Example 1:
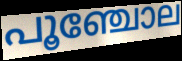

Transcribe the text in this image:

പൂഞ്ചോല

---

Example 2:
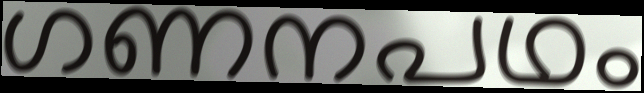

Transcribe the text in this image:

ഗണനപഥം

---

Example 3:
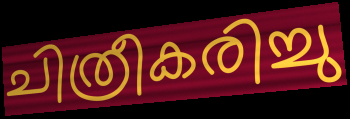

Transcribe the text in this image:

ചിത്രീകരിച്ചു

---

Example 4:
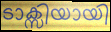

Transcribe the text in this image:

ടാക്സിയായി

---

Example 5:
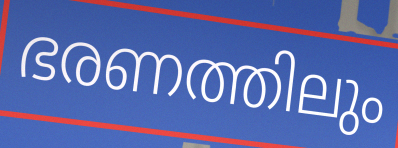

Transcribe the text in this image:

ഭരണത്തിലും